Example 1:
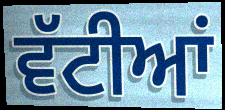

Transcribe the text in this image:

ਵੱਟੀਆਂ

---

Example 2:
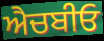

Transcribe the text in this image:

ਐਚਬੀਓ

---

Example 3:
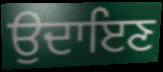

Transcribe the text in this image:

ਉਦਾਇਣ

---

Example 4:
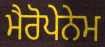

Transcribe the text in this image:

ਮੈਰੋਪੇਨੇਮ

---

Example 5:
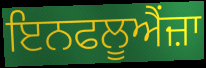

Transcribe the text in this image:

ਇਨਫਲੂਐਂਜ਼ਾ